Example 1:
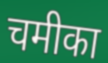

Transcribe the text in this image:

चमीका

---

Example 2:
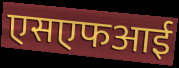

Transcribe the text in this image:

एसएफआई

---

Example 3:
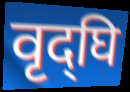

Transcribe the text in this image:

वृद्घि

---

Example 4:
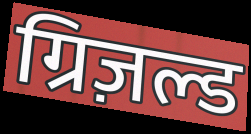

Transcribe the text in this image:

ग्रिज़ल्ड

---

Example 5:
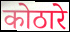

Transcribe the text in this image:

कोठारे